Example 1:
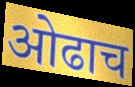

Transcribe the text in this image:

ओढाच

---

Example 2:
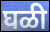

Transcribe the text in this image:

घळी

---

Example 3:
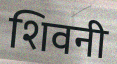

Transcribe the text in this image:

शिवनी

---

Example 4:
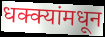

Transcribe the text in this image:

धक्क्यांमधून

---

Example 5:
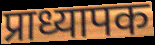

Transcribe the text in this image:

प्राध्यापक